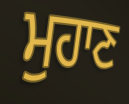
ਮੁਹਾਣ